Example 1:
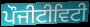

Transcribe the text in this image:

ਪੌਜੀਟੀਵਿਟੀ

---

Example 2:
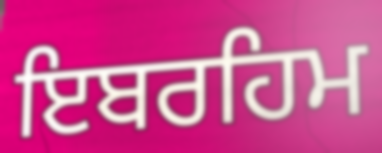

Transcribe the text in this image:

ਇਬਰਹਿਮ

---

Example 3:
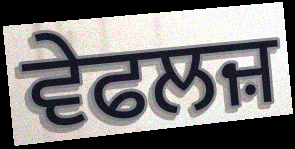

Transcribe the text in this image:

ਵੇਫਲਜ਼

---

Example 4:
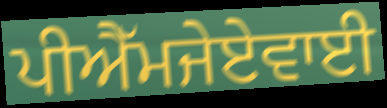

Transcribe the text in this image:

ਪੀਐੱਮਜੇਏਵਾਈ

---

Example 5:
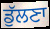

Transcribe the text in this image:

ਡੁੱਲਣਾ